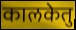
कालकेतु